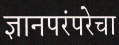
ज्ञानपरंपरेचा